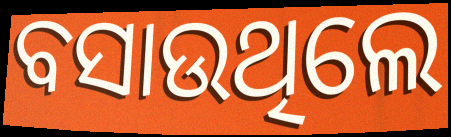
ବସାଉଥିଲେ